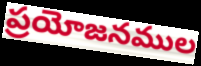
ప్రయోజనముల